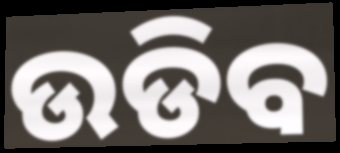
ଉଡିବ